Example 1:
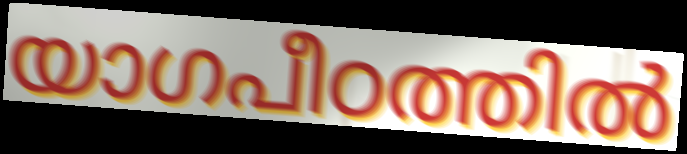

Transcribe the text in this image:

യാഗപീഠത്തിൽ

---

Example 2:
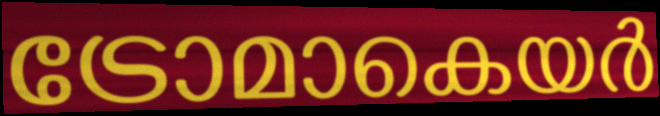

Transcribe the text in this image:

ട്രോമാകെയർ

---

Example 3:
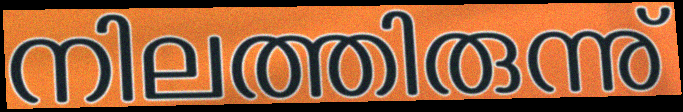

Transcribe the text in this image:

നിലത്തിരുന്നു്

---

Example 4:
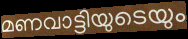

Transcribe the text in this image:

മണവാട്ടിയുടെയും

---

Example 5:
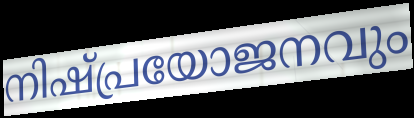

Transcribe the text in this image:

നിഷ്പ്രയോജനവും